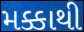
મક્કાથી